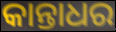
କାନ୍ତାଧର